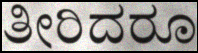
ತೀರಿದರೂ